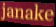
janake